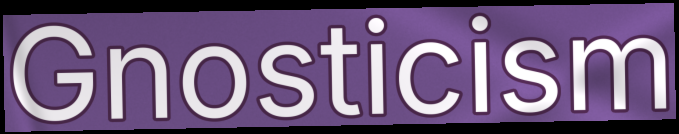
Gnosticism